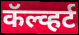
कॅल्व्हर्ट